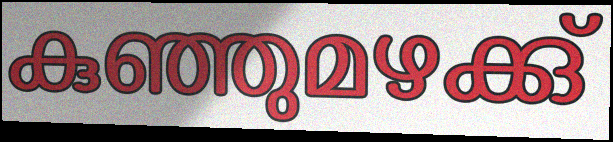
കുഞ്ഞുമഴക്കു്